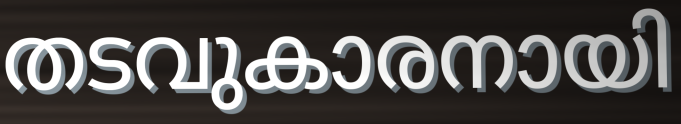
തടവുകാരനായി